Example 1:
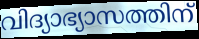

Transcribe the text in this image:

വിദ്യാഭ്യാസത്തിന്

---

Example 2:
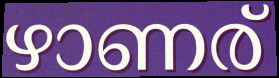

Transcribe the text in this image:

ഴാണര്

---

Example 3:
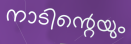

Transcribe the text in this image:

നാടിന്റെയും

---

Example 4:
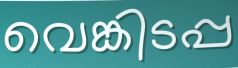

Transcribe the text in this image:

വെങ്കിടപ്പ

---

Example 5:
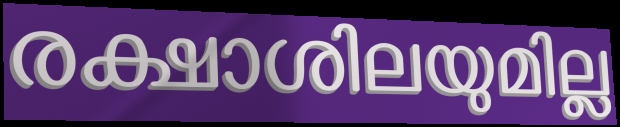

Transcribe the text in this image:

രക്ഷാശിലയുമില്ല